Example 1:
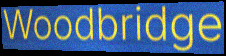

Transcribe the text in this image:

Woodbridge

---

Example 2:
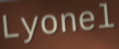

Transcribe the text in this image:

Lyonel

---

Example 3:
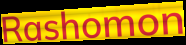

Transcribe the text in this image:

Rashomon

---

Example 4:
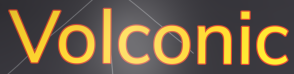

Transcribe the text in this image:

Volconic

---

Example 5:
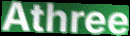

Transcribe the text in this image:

Athree